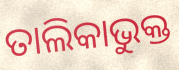
ତାଲିକାଭୁକ୍ତ